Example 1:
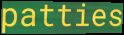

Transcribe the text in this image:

patties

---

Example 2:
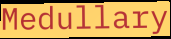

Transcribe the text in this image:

Medullary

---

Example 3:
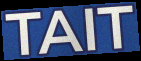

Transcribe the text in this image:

TAIT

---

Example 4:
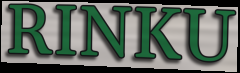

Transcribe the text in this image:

RINKU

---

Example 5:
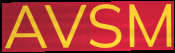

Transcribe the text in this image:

AVSM